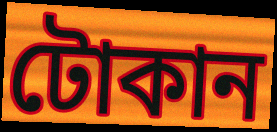
টোকান